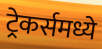
ट्रेकर्समध्ये